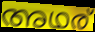
അഥര്